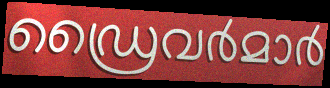
ഡ്രൈവർമാർ